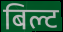
बिल्ट